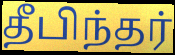
தீபிந்தர்